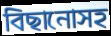
বিছানোসহ